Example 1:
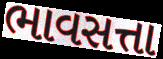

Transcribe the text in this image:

ભાવસત્તા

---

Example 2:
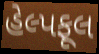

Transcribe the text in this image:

હેલ્પફૂલ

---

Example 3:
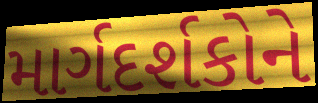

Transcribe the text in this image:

માર્ગદર્શકોને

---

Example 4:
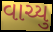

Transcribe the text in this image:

વાચ્યુ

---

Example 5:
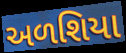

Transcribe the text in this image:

અળશિયા